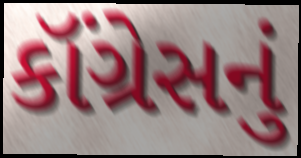
કૉંગ્રેસનું